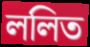
ললিত